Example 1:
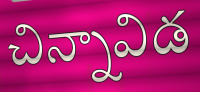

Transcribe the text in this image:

చిన్నావిడ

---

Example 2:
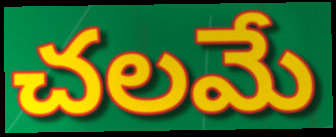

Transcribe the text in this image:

చలమే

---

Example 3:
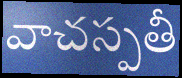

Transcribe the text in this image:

వాచస్పతీ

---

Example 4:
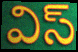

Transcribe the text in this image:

విస్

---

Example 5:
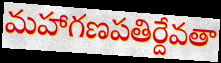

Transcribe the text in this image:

మహాగణపతిర్దేవతా